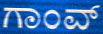
ಗಾಂವ್